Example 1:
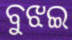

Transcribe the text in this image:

ବୁଝଇ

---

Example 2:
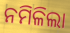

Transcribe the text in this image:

ନମିଳିଲା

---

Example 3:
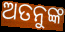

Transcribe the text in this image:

ଅତନୁଙ୍କ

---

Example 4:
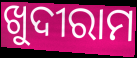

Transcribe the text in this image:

ଖୁଦୀରାମ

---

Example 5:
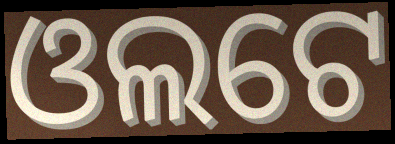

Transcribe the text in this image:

ଓଲଟେ